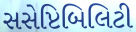
સસેપ્ટિબિલિટી